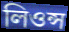
লিওন্স